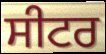
ਸੀਟਰ